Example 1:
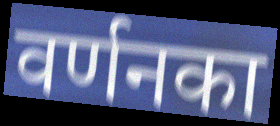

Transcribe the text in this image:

वर्णनका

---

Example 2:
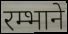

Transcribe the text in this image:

रम्भाने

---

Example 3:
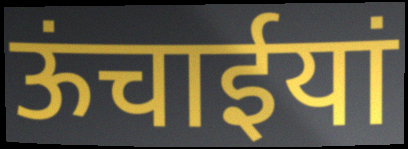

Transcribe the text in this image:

ऊंचाईयां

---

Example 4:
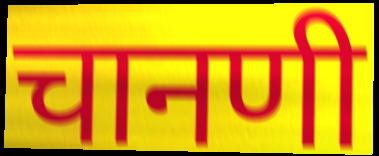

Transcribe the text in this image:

चानणी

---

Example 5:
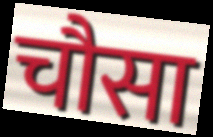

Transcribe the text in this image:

चौसा